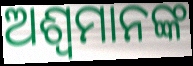
ଅଶ୍ୱମାନଙ୍କ